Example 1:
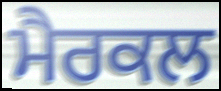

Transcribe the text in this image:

ਮੈਰਕਲ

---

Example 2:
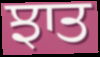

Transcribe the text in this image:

ਝਾਤ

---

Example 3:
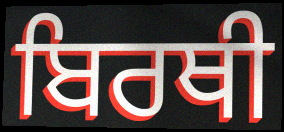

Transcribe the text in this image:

ਬਿਰਥੀ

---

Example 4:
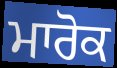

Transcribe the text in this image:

ਮਾਰੋਕ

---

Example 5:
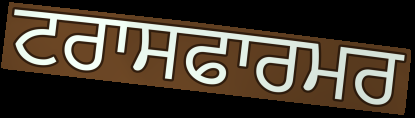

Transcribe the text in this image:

ਟਰਾਸਫਾਰਮਰ